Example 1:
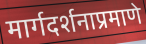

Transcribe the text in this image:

मार्गदर्शनाप्रमाणे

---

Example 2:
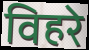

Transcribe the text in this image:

विहरे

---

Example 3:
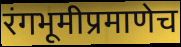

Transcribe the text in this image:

रंगभूमीप्रमाणेच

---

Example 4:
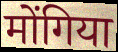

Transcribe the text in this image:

मोंगिया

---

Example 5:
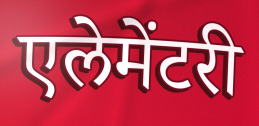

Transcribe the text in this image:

एलेमेंटरी